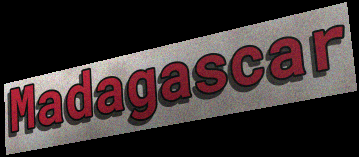
Madagascar